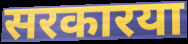
सरकारया